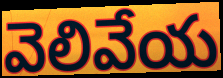
వెలివేయ